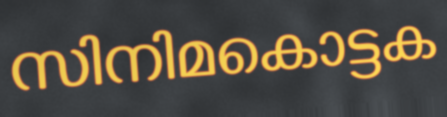
സിനിമകൊട്ടക